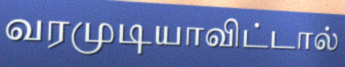
வரமுடியாவிட்டால்